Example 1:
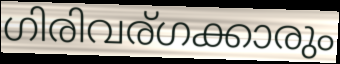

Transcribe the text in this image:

ഗിരിവര്ഗക്കാരും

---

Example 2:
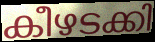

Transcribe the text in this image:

കീഴടക്കി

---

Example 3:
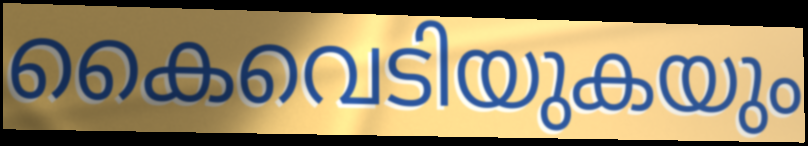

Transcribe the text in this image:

കൈവെടിയുകയും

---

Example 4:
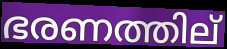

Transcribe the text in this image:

ഭരണത്തില്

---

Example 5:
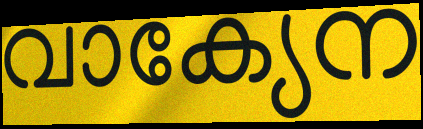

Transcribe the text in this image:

വാക്യേന